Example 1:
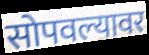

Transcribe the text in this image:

सोपवल्यावर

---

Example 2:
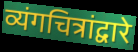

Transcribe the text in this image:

व्यंगचित्रांद्वारे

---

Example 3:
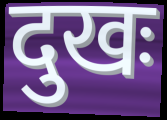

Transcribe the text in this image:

दुखः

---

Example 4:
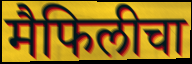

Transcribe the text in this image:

मैफिलीचा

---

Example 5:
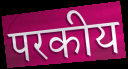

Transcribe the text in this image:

परकीय